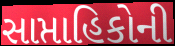
સાપ્તાહિકોની